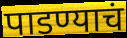
पाडण्याचं